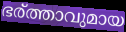
ഭര്ത്താവുമായ